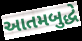
આતમબુદ્ધે